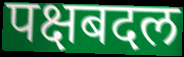
पक्षबदल